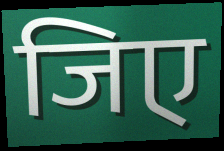
जिए